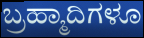
ಬ್ರಹ್ಮಾದಿಗಳೂ